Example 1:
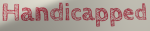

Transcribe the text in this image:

Handicapped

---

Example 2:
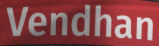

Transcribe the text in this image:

Vendhan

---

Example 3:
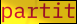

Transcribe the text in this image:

partit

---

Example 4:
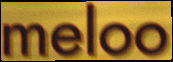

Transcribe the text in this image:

meloo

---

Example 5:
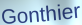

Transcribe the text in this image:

Gonthier